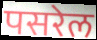
पसरेल